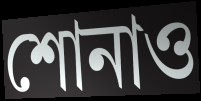
শোনাও